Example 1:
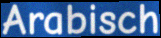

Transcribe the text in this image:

Arabisch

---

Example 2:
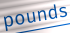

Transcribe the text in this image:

pounds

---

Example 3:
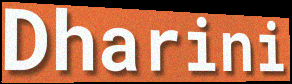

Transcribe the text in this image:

Dharini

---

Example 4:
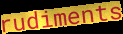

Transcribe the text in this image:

rudiments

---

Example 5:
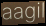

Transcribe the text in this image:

aagil